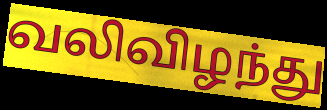
வலிவிழந்து